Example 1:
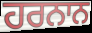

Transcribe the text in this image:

ਹਰਨਾਨ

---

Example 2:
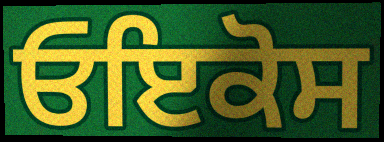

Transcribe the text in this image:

ਓਇਕੋਸ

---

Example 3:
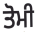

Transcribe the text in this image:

ਤੋਮੀ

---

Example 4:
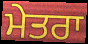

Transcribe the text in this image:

ਮੇਤਰਾ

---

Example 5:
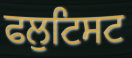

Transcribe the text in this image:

ਫਲੁਟਿਸਟ